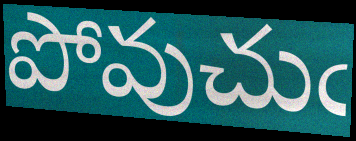
పోవుచుఁ